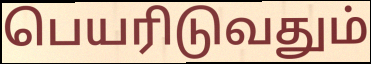
பெயரிடுவதும்